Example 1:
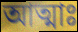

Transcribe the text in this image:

আত্মাঃ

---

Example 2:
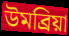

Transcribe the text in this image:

উমব্রিয়া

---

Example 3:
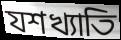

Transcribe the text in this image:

যশখ্যাতি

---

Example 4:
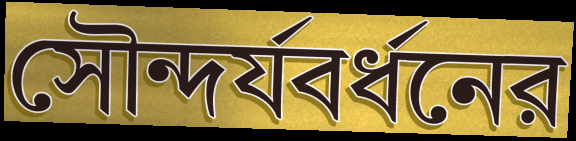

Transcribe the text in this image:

সৌন্দর্যবর্ধনের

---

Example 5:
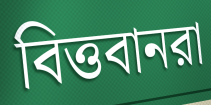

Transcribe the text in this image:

বিত্তবানরা